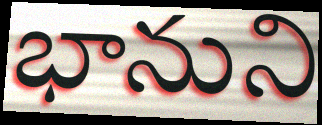
భానుని